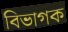
বিভাগক